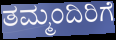
ತಮ್ಮಂದಿರಿಗೆ